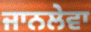
ਜਾਨਲੇਵਾ